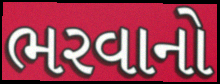
ભરવાનો